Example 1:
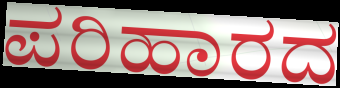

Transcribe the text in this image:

ಪರಿಹಾರದ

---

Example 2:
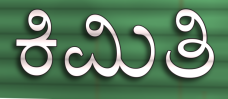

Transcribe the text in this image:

ಕಿಮಿತಿ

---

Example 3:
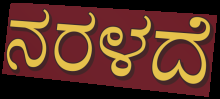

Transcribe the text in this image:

ನರಳದೆ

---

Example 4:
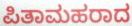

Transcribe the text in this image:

ಪಿತಾಮಹರಾದ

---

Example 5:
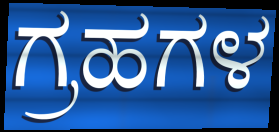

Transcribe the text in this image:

ಗ್ರಹಗಳ